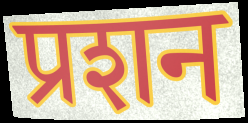
प्रशन